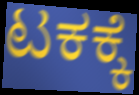
ಟಕಕ್ಕೆ